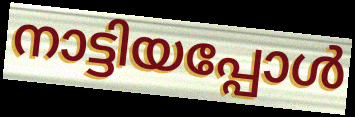
നാട്ടിയപ്പോൾ